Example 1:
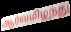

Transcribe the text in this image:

ஆர்வமிழந்து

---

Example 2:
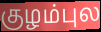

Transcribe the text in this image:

குழம்புல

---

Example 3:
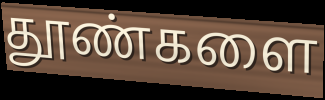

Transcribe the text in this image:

தூண்களை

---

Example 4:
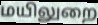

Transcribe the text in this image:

மயிலுறை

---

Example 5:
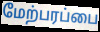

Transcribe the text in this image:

மேற்பரப்பை